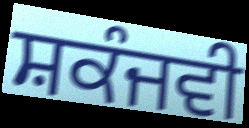
ਸ਼ਕੰਜਵੀ